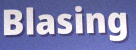
Blasing